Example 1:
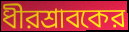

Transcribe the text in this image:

ধীরশ্রাবকের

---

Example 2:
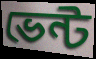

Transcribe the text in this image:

ভেন্ট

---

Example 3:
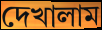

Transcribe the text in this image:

দেখালাম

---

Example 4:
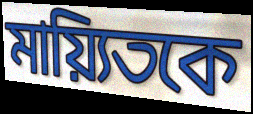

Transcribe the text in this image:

মায়্যিতকে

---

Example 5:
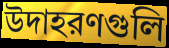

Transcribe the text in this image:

উদাহরণগুলি